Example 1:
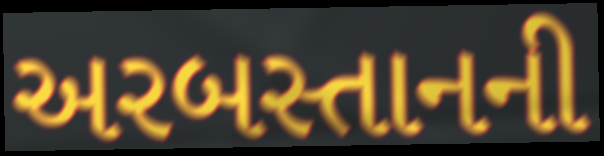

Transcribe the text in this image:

અરબસ્તાનની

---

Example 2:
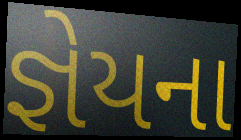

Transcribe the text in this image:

જ્ઞેયના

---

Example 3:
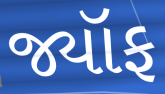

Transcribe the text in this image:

જ્યૉફ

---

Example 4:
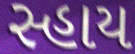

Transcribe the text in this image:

સ્હાય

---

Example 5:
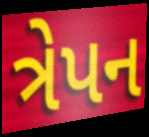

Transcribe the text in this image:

ત્રેપન